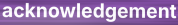
acknowledgement